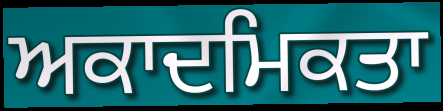
ਅਕਾਦਮਿਕਤਾ